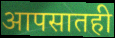
आपसातही